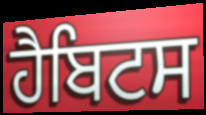
ਹੈਬਿਟਸ